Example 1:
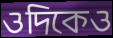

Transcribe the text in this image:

ওদিকেও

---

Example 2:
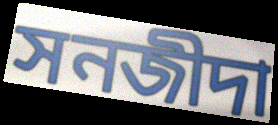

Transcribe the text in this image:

সনজীদা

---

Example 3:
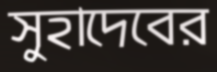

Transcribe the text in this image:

সুহাদেবের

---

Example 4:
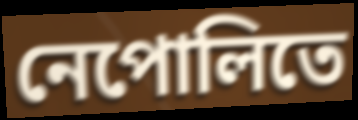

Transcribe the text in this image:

নেপোলিতে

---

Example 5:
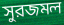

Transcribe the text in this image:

সুরজমল